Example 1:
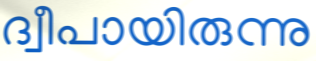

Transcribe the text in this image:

ദ്വീപായിരുന്നു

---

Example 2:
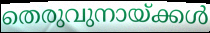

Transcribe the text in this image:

തെരുവുനായ്ക്കൾ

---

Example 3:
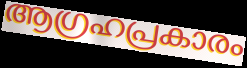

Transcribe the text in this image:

ആഗ്രഹപ്രകാരം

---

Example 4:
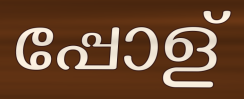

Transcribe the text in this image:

പ്പോള്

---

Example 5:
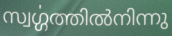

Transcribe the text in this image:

സ്വൎഗ്ഗത്തിൽനിന്നു